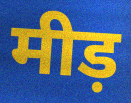
मीड़